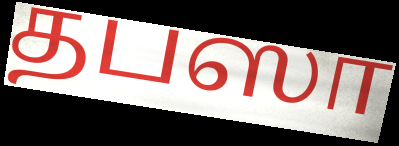
தபஸா